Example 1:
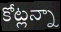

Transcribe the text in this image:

కోట్లన్నా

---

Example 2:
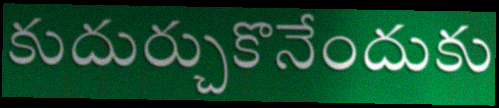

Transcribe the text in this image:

కుదుర్చుకొనేందుకు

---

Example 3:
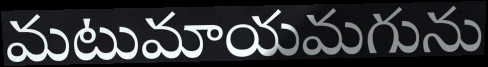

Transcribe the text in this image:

మటుమాయమగును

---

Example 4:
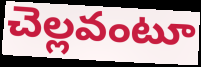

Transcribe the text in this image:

చెల్లవంటూ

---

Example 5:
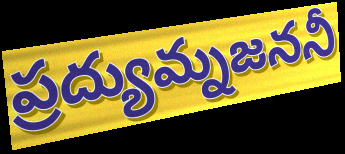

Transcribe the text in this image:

ప్రద్యుమ్నజననీ